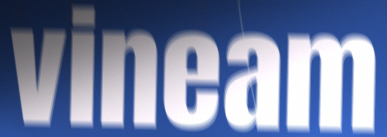
vineam